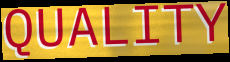
QUALITY